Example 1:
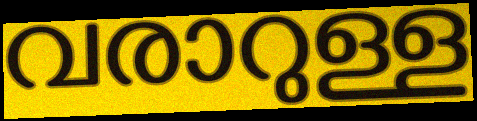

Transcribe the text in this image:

വരാറുള്ള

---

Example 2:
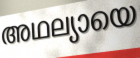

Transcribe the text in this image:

അഥല്യായെ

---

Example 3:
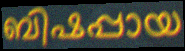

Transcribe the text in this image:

ബിഷപ്പായ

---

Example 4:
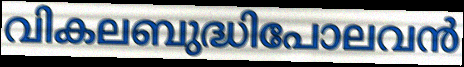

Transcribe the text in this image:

വികലബുദ്ധിപോലവൻ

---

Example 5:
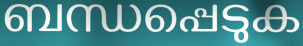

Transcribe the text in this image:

ബന്ധപ്പെടുക